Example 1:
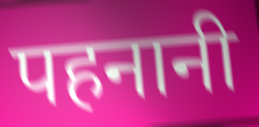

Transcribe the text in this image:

पहनानी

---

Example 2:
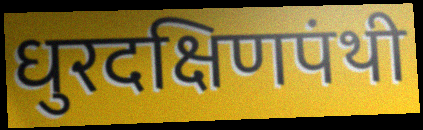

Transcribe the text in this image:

धुरदक्षिणपंथी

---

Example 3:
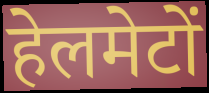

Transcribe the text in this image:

हेलमेटों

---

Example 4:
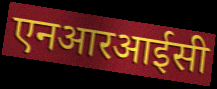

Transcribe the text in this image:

एनआरआईसी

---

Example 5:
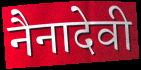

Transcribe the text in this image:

नैनादेवी